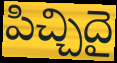
పిచ్చిదై